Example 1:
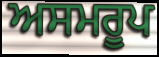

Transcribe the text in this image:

ਅਸਮਰੂਪ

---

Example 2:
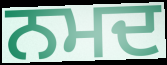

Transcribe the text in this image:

ਨਮਦ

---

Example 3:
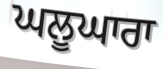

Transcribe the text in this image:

ਘਲੂਘਾਰਾ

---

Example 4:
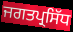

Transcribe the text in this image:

ਜਗਤਪ੍ਰਸਿੱਧ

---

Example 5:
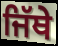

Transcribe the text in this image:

ਜਿੱਥੇ